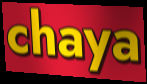
chaya